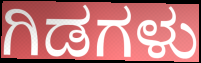
ಗಿಡಗಳು